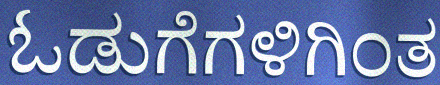
ಓಡುಗೆಗಳಿಗಿಂತ